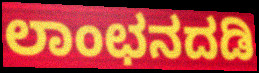
ಲಾಂಛನದಡಿ